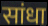
सांधा